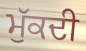
ਮੁੱਕਦੀ